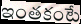
ఇంతకంటే